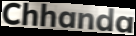
Chhanda